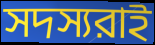
সদস্যরাই